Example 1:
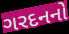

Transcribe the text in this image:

ગરદનનો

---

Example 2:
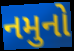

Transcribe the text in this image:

નમુનો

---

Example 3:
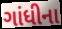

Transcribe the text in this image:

ગાંધીના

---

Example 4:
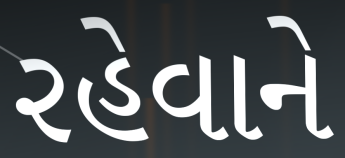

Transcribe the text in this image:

રહેવાને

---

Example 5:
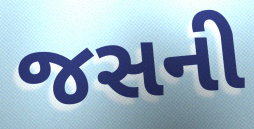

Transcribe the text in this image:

જસની